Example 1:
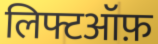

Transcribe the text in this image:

लिफ्टऑफ़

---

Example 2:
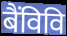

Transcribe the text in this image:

बैंविवि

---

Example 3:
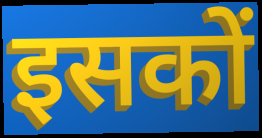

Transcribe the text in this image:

इसकों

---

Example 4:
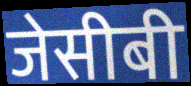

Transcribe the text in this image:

जेसीबी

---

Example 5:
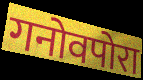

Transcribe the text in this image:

गनोवपोरा